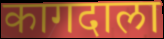
कागदाला